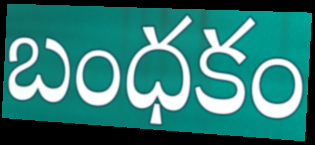
బంధకం